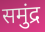
समुंद्र